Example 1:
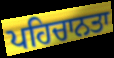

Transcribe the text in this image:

ਪਹਿਚਾਨਤਾ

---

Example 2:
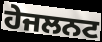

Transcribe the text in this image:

ਹੇਜਲਨਟ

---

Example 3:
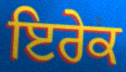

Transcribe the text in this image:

ਇਰੇਕ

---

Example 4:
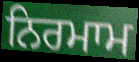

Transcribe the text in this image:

ਨਿਰਮਾਮ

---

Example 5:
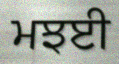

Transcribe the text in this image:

ਮਝਈ